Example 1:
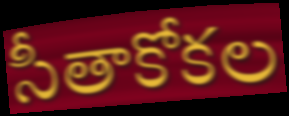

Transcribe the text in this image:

సీతాకోకల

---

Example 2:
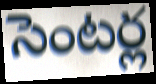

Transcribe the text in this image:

సెంటర్ల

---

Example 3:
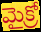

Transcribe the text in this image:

మైక్రో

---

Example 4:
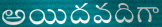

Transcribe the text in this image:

అయిదవదిగా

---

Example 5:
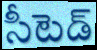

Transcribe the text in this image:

సీటెడ్